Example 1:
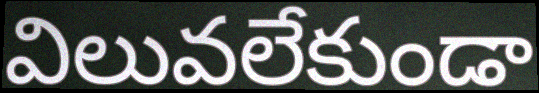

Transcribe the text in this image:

విలువలేకుండా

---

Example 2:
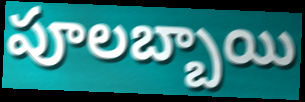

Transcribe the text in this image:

పూలబ్బాయి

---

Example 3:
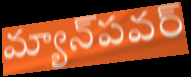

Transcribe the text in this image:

మ్యాన్‌పవర్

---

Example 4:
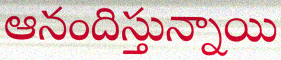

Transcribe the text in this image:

ఆనందిస్తున్నాయి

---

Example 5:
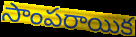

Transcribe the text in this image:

సాంపరాయిక